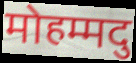
मोहम्मदु